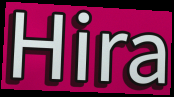
Hira